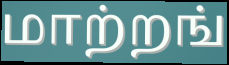
மாற்றங்